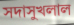
সদাসুখলাল